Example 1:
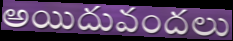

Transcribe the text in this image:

అయిదువందలు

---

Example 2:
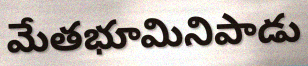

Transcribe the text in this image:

మేతభూమినిపాడు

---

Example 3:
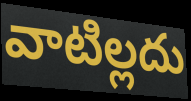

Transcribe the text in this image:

వాటిల్లదు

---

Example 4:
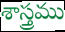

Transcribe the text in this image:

శాస్త్రము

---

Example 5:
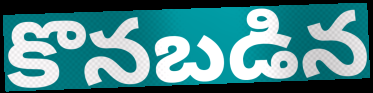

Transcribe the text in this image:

కొనబడిన